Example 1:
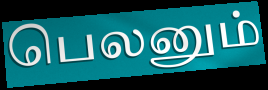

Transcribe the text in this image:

பெலனும்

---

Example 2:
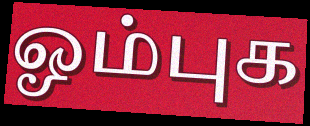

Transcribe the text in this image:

ஓம்புக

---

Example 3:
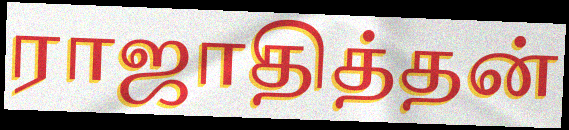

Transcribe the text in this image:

ராஜாதித்தன்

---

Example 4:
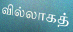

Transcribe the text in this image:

வில்லாகத்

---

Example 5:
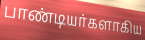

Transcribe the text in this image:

பாண்டியர்களாகிய